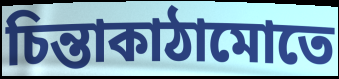
চিন্তাকাঠামোতে